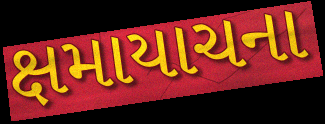
ક્ષમાયાચના